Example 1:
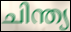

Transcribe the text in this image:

ചിന്ത്യ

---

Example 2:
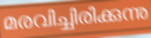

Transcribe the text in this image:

മരവിച്ചിരിക്കുന്നു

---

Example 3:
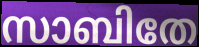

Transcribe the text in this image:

സാബിതേ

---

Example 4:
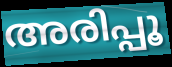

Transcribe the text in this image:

അരിപ്പൂ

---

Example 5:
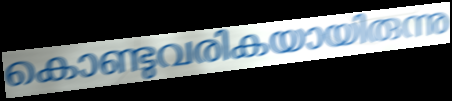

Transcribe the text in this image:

കൊണ്ടുവരികയായിരുന്നു